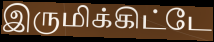
இருமிக்கிட்டே